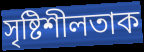
সৃষ্টিশীলতাক